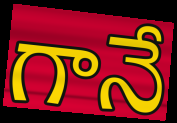
గానే